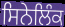
ਸਿਨੇਲਿੰਕ